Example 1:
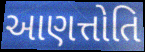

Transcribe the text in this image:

આણત્તોતિ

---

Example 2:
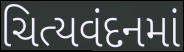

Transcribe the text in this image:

ચિત્યવંદનમાં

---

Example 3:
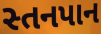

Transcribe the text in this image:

સ્તનપાન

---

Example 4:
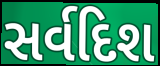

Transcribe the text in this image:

સર્વદિશ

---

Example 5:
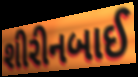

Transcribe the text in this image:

શીરીનબાઈ